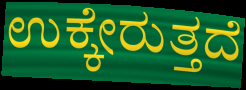
ಉಕ್ಕೇರುತ್ತದೆ